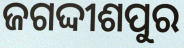
ଜଗଦ୍ଦୀଶପୁର